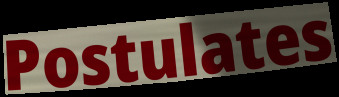
Postulates